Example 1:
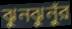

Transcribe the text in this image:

ঝুনঝুনুঁর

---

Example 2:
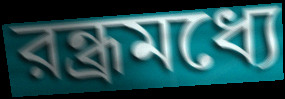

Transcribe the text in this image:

রন্ধ্রমধ্যে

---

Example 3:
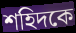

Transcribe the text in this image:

শহিদকে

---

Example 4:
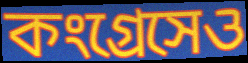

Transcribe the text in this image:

কংগ্রেসেও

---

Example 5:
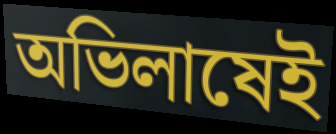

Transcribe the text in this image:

অভিলাষেই